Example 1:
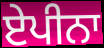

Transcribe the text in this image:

ਏਪੀਨਾ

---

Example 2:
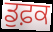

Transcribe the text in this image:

ਡੁਫ਼ਕ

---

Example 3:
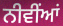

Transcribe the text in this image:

ਨੀਵੀਂਆਂ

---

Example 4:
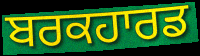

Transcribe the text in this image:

ਬਰਕਹਾਰਡ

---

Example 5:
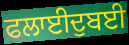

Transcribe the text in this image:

ਫਲਾਈਦੁਬਈ